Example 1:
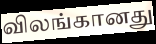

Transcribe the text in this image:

விலங்கானது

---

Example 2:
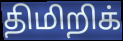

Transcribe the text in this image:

திமிறிக்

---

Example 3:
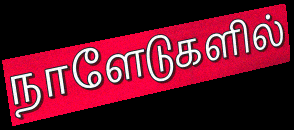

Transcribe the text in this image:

நாளேடுகளில்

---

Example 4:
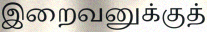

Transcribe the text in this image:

இறைவனுக்குத்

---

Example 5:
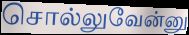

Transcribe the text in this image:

சொல்லுவேன்னு